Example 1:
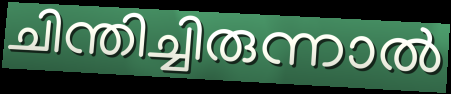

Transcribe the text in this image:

ചിന്തിച്ചിരുന്നാൽ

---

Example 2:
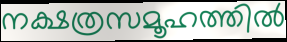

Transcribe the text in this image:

നക്ഷത്രസമൂഹത്തിൽ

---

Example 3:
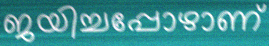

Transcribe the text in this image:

ജയിച്ചപ്പോഴാണ്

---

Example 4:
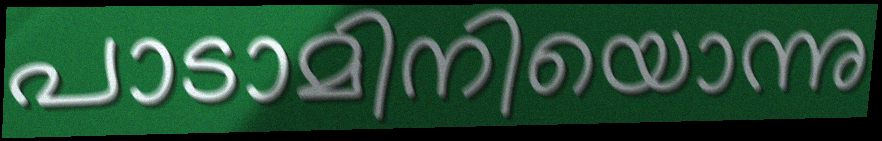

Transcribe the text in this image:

പാടാമിനിയൊന്നു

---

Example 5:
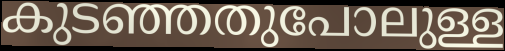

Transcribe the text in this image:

കുടഞ്ഞതുപോലുള്ള